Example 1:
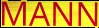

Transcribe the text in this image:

MANN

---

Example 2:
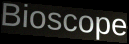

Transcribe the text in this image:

Bioscope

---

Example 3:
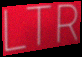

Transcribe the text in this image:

LTR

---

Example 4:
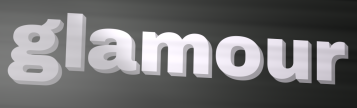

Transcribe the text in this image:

glamour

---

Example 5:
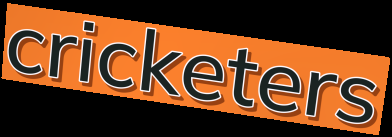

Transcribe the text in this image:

cricketers